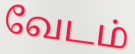
வேடம்